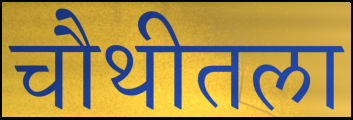
चौथीतला